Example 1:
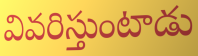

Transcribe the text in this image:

వివరిస్తుంటాడు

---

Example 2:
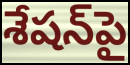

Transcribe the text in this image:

శేషన్‌పై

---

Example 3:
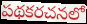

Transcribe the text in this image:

పథకరచనలో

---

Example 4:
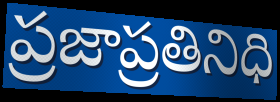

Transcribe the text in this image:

ప్రజాప్రతినిధి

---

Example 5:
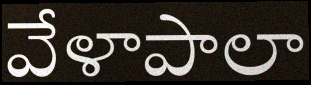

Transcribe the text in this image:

వేళాపాలా